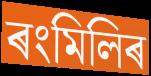
ৰংমিলিৰ